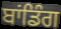
ਬਾਂਡਿੰਗ